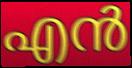
എൻ